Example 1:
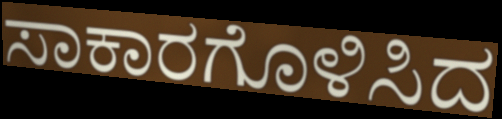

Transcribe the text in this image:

ಸಾಕಾರಗೊಳಿಸಿದ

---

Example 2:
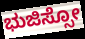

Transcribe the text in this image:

ಭುಜಿಸ್ಸೋ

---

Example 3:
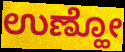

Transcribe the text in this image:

ಉಣ್ಹೋ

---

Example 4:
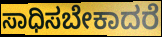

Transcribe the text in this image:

ಸಾಧಿಸಬೇಕಾದರೆ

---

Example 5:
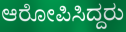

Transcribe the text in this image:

ಆರೋಪಿಸಿದ್ದರು